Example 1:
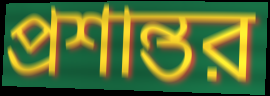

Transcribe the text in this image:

প্রশান্তর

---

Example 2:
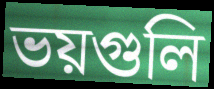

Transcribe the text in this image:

ভয়গুলি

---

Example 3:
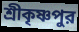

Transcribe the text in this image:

শ্রীকৃষ্ণপুর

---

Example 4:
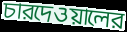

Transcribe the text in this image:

চারদেওয়ালের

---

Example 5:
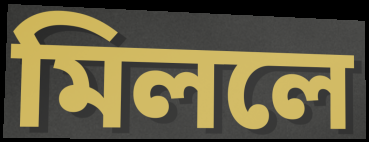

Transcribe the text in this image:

মিললে